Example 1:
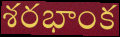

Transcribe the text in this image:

శరభాంక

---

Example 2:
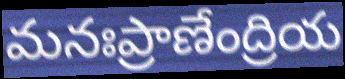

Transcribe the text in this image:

మనఃప్రాణేంద్రియ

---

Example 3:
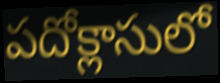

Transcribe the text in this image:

పదోక్లాసులో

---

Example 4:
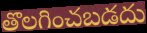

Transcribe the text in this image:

తొలగించబడదు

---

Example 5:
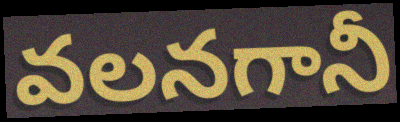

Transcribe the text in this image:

వలనగానీ